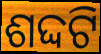
ଶଦ୍ଦଟି